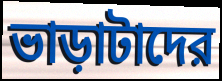
ভাড়াটাদের